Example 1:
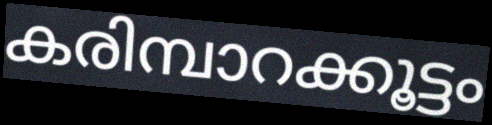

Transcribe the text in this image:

കരിമ്പാറക്കൂട്ടം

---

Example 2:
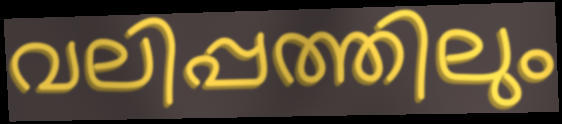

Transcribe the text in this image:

വലിപ്പത്തിലും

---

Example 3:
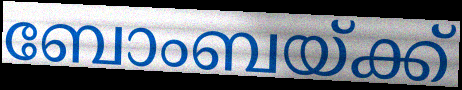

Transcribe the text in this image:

ബോംബയ്ക്ക്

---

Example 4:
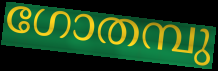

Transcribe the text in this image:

ഗോതമ്പു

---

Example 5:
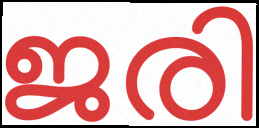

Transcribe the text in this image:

ജരി